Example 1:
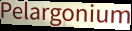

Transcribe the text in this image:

Pelargonium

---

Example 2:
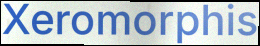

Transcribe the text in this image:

Xeromorphis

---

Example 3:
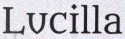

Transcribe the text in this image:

Lucilla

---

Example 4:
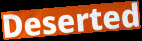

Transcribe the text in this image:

Deserted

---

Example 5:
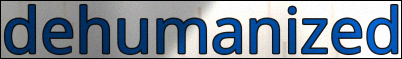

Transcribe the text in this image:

dehumanized